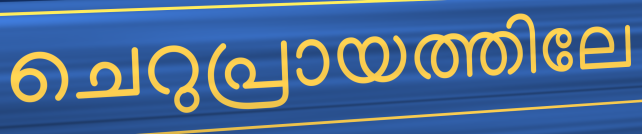
ചെറുപ്രായത്തിലേ